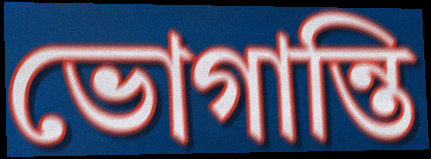
ভোগান্তি